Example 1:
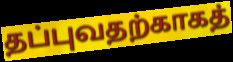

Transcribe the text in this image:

தப்புவதற்காகத்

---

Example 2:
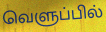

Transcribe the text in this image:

வெளுப்பில்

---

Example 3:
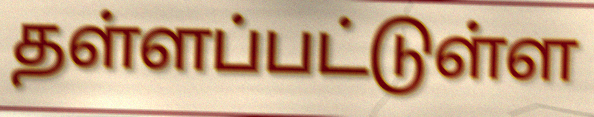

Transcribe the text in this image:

தள்ளப்பட்டுள்ள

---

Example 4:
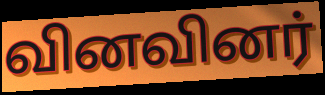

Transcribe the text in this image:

வினவினர்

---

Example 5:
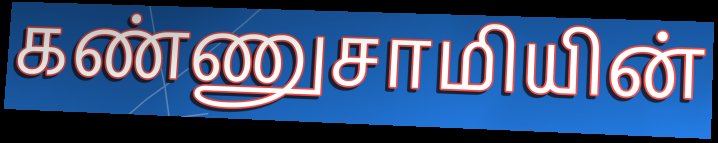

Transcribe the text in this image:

கண்ணுசாமியின்